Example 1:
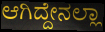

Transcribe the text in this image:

ಆಗಿದ್ದೇನಲ್ಲಾ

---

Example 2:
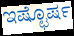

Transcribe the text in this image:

ಇಷ್ಟೊರ್ಷ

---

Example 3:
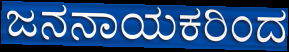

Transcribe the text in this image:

ಜನನಾಯಕರಿಂದ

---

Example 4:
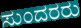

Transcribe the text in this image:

ಸುಂದರರು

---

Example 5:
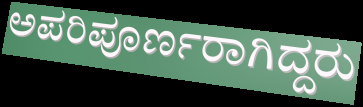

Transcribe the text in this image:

ಅಪರಿಪೂರ್ಣರಾಗಿದ್ದರು